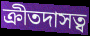
ক্রীতদাসত্ব